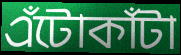
এঁটোকাঁটা